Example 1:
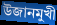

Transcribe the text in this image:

উজানমুখী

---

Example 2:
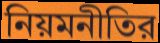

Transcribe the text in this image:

নিয়মনীতির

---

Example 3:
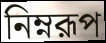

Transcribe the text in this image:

নিম্নরূপ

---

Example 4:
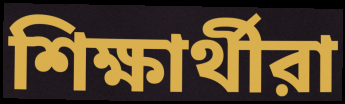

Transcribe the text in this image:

শিক্ষার্থীরা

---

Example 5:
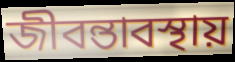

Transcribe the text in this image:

জীবন্তাবস্থায়